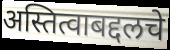
अस्तित्वाबद्दलचे